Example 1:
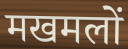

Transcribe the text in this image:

मखमलों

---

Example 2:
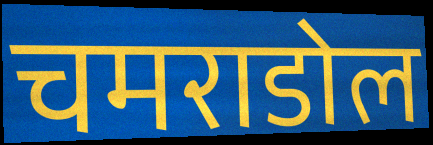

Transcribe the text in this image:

चमराडोल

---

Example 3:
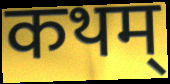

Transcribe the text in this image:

कथम्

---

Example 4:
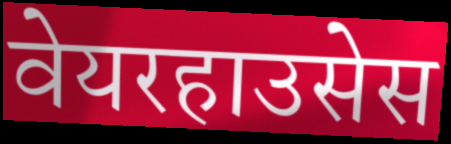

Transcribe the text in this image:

वेयरहाउसेस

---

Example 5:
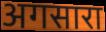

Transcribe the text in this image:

अगसारा